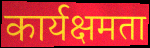
कार्यक्षमता